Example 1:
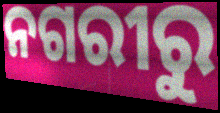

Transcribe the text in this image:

ନଗରୀରୁ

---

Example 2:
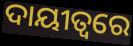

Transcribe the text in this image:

ଦାୟୀତ୍ଵରେ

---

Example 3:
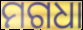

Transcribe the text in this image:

ମଗଧା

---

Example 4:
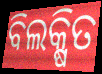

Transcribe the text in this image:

ବିଲକ୍ଷିତ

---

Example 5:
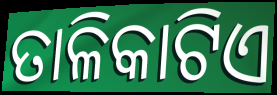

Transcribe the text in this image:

ତାଳିକାଟିଏ